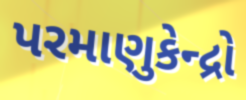
પરમાણુકેન્દ્રો